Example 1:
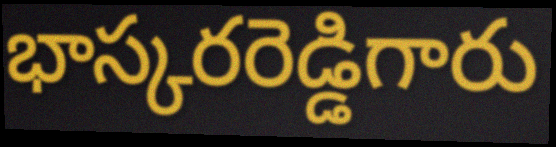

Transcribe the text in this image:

భాస్కరరెడ్డిగారు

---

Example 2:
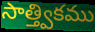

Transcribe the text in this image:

సాత్త్వికము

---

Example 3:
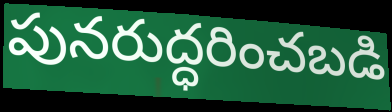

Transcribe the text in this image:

పునరుద్ధరించబడి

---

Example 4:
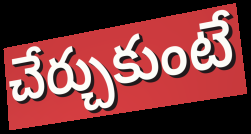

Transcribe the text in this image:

చేర్చుకుంటే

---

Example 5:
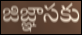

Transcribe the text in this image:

జిజ్ఞాసకు